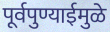
पूर्वपुण्याईमुळे